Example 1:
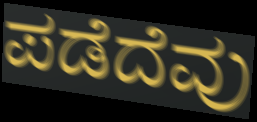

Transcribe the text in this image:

ಪಡೆದೆವು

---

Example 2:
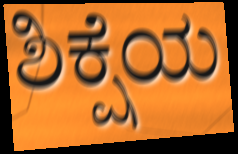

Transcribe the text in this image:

ಶಿಕ್ಷೆಯ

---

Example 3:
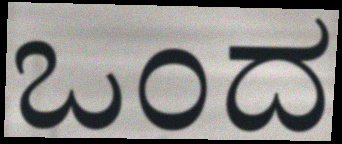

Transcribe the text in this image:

ಒಂದ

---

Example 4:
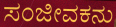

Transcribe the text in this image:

ಸಂಜೀವಕನು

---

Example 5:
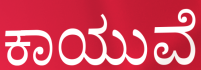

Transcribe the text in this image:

ಕಾಯುವೆ